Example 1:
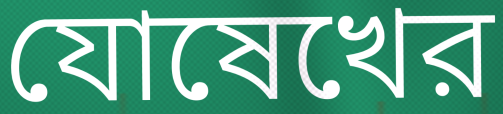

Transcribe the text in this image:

যোষেখের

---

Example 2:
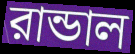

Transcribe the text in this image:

রান্ডাল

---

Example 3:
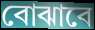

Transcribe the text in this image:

বোঝাবে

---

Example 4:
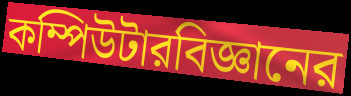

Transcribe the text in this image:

কম্পিউটারবিজ্ঞানের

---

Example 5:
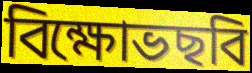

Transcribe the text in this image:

বিক্ষোভছবি